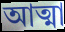
আত্মা